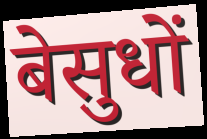
बेसुधों